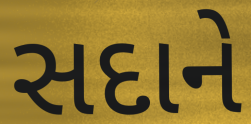
સદાને